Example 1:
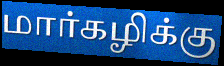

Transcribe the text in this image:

மார்கழிக்கு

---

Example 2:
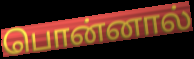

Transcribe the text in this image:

பொன்னால்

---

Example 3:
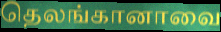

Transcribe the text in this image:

தெலங்கானாவை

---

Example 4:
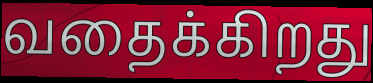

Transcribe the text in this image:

வதைக்கிறது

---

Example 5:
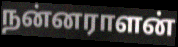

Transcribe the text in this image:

நன்னராளன்